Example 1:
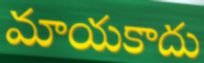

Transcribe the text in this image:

మాయకాదు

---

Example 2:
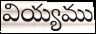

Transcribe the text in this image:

వియ్యము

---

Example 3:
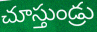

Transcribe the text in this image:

చూస్తుండ్రు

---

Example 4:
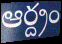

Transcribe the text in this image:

ఆర్ద్రం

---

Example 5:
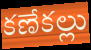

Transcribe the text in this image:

కణేకల్లు